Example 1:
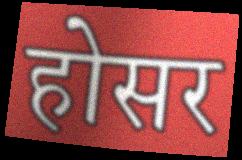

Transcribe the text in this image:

होसर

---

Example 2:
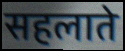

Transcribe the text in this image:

सहलाते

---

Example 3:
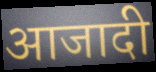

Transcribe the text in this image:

आजादी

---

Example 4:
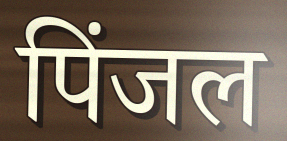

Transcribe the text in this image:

पिंजल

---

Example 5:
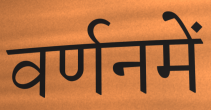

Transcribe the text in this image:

वर्णनमें